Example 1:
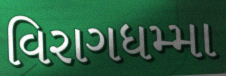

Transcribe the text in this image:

વિરાગધમ્મા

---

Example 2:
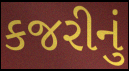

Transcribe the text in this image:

કજરીનું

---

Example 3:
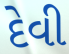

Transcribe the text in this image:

દેવી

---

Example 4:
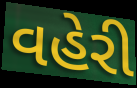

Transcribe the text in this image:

વહેરી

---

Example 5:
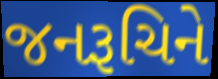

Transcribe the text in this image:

જનરૂચિને